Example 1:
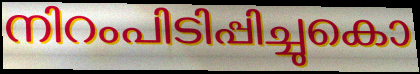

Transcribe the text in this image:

നിറംപിടിപ്പിച്ചുകൊ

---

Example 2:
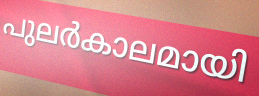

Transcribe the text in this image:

പുലർകാലമായി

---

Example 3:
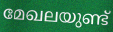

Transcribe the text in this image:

മേഖലയുണ്ട്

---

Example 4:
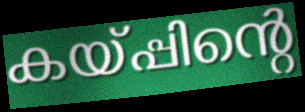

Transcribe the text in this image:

കയ്പ്പിന്റെ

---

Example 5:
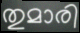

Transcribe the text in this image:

തുമാരി